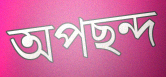
অপছন্দ